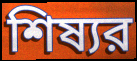
শিষ্যর